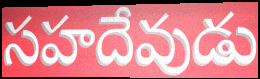
సహదేవుడు